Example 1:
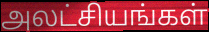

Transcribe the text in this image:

அலட்சியங்கள்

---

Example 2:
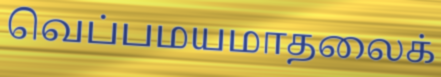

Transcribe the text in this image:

வெப்பமயமாதலைக்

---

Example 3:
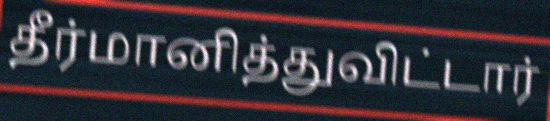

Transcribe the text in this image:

தீர்மானித்துவிட்டார்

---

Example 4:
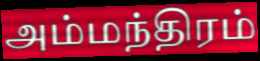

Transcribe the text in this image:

அம்மந்திரம்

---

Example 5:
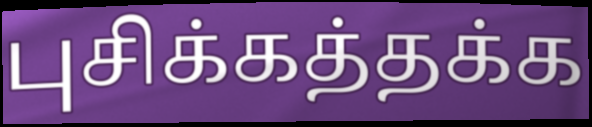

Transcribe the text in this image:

புசிக்கத்தக்க